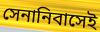
সেনানিবাসেই